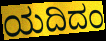
ಯದಿದಂ